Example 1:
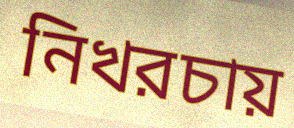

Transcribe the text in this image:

নিখরচায়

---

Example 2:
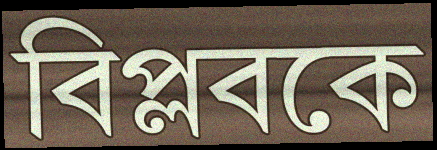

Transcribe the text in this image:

বিপ্লবকে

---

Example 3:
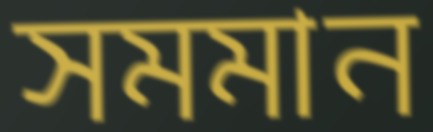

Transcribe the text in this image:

সমমান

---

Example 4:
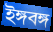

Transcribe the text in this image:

ইঙ্গবঙ্গ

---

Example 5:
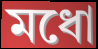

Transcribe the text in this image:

মধো